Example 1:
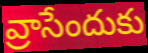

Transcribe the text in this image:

వ్రాసేందుకు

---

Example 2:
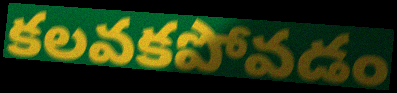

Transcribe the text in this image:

కలవకపోవడం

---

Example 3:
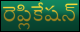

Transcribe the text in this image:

రెప్లికేషన్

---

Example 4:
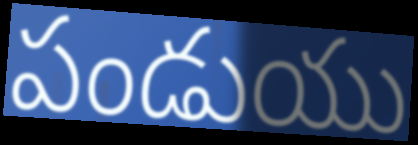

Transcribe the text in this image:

పండుయు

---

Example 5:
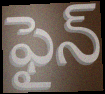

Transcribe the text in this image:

ఫైన్